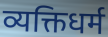
व्यक्तिधर्म